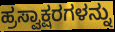
ಹ್ರಸ್ವಾಕ್ಷರಗಳನ್ನು